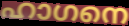
ഹാഗനെ